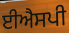
ਈਐਸਪੀ